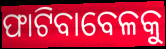
ଫାଟିବାବେଳକୁ